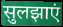
सुलझाएं